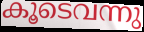
കൂടെവന്നു